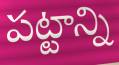
పట్టాన్ని